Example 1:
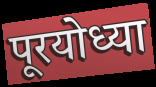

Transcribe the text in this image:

पूरयोध्या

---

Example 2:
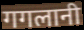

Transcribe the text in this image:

गगलानी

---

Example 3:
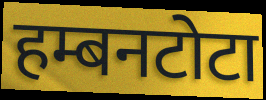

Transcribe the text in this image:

हम्बनटोटा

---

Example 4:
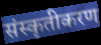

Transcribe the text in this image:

संस्कृतीकरण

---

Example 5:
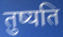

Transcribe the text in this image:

तुष्यति